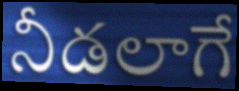
నీడలాగే